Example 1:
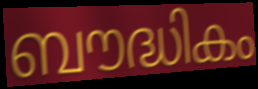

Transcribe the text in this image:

ബൗദ്ധികം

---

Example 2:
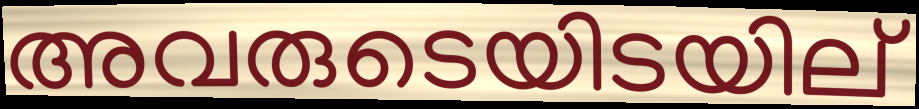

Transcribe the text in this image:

അവരുടെയിടയില്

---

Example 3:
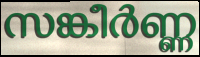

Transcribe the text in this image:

സങ്കീർണ്ണ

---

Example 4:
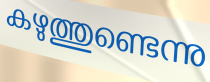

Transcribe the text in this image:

കഴുത്തുണ്ടെന്നു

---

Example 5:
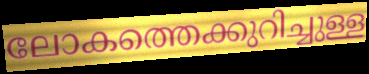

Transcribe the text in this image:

ലോകത്തെക്കുറിച്ചുള്ള